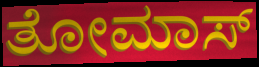
ತೋಮಾಸ್